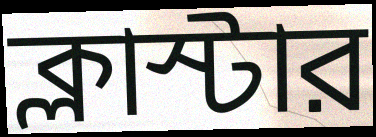
ক্লাস্টার